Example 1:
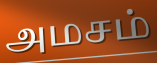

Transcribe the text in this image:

அமசம்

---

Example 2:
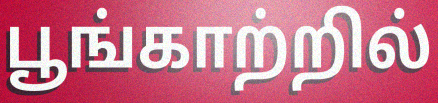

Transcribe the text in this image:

பூங்காற்றில்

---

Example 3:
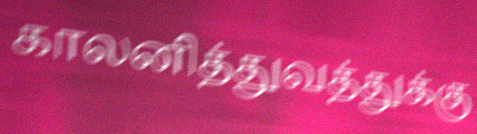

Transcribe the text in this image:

காலனித்துவத்துக்கு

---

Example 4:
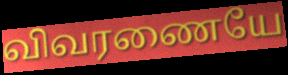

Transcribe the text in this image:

விவரணையே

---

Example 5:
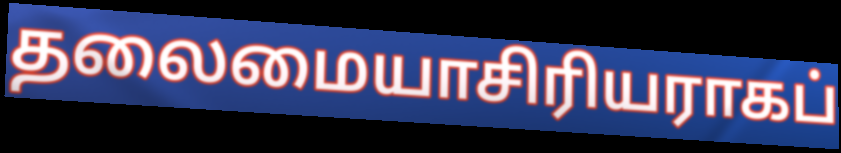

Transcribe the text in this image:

தலைமையாசிரியராகப்